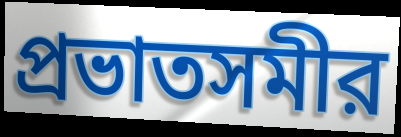
প্রভাতসমীর